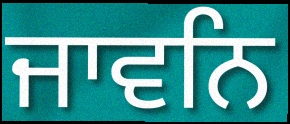
ਜਾਵਨਿ